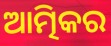
ଆତ୍ମିକର